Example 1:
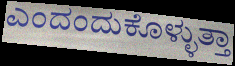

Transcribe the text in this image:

ಎಂದಂದುಕೊಳ್ಳುತ್ತಾ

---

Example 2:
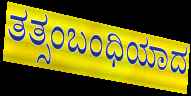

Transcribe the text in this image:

ತತ್ಸಂಬಂಧಿಯಾದ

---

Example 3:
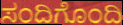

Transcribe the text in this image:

ಸಂದಿಗೊಂದಿ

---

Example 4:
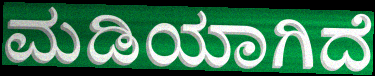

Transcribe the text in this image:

ಮಡಿಯಾಗಿದೆ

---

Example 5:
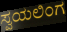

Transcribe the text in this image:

ಸ್ವಯಲಿಂಗ